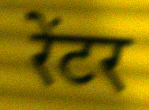
रेंटर